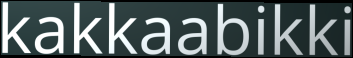
kakkaabikki